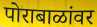
पोराबाळांवर